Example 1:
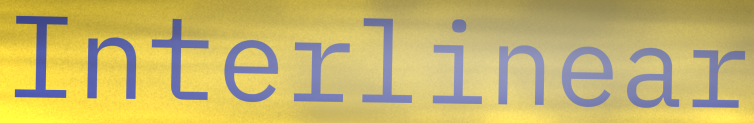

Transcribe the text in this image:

Interlinear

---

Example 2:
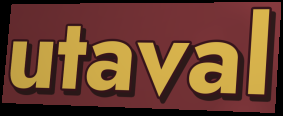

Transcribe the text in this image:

utaval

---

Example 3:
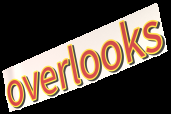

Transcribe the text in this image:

overlooks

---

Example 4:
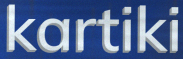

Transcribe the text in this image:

kartiki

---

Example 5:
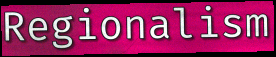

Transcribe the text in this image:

Regionalism